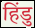
हिंडु